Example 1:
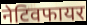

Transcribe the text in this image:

नेटिवफायर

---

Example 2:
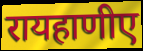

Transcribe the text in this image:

रायहाणीए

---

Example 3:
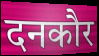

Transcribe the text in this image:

दनकौर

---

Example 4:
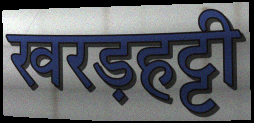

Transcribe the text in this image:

खरड़हट्टी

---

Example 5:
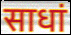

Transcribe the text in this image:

साधां